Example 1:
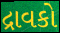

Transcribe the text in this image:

દ્રાવકો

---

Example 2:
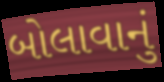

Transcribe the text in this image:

બોલાવાનું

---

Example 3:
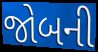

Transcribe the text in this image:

જોબની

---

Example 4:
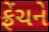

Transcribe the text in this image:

ફ્રેંચને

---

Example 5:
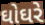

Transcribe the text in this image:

ઘોઘરે